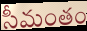
సీమంతం